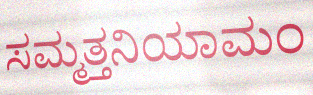
ಸಮ್ಮತ್ತನಿಯಾಮಂ